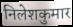
निलेशकुमार